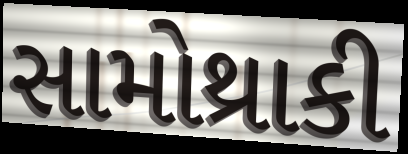
સામોથ્રાકી